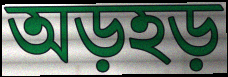
অড়হড়